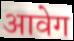
आवेग